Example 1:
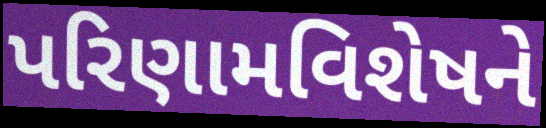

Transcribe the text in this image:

પરિણામવિશેષને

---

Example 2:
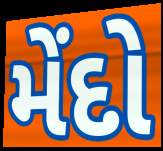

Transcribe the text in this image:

મેંદો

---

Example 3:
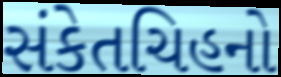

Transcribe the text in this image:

સંકેતચિહનો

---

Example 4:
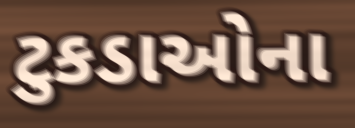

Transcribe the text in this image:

ટુકડાઓના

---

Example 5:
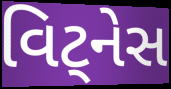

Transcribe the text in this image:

વિટ્નેસ